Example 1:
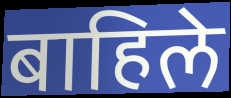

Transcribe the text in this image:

बाहिले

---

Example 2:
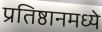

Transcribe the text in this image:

प्रतिष्ठानमध्ये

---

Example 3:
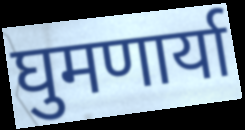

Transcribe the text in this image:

घुमणार्या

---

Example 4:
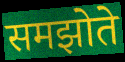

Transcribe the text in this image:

समझोते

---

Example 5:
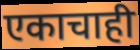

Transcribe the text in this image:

एकाचाही